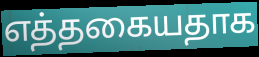
எத்தகையதாக